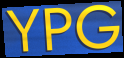
YPG